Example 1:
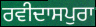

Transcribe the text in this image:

ਰਵੀਦਾਸਪੁਰਾ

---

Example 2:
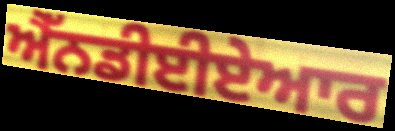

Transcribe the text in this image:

ਐੱਨਡੀਈਏਆਰ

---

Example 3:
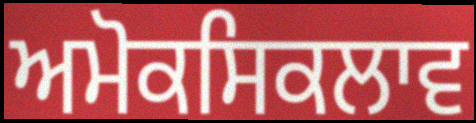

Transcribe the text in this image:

ਅਮੋਕਸਿਕਲਾਵ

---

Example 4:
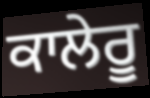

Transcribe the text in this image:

ਕਾਲੇਰੂ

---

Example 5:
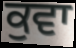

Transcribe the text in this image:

ਕੁਵਾ